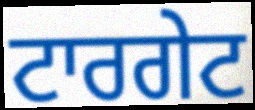
ਟਾਰਗੇਟ